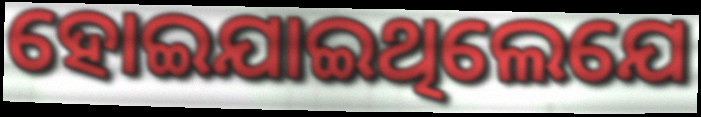
ହୋଇଯାଇଥିଲେଯେ